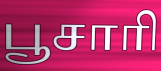
பூசாரி